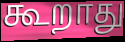
கூறாது